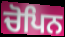
ਚੋਪਿਨ